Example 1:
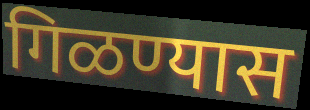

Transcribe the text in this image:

गिळण्यास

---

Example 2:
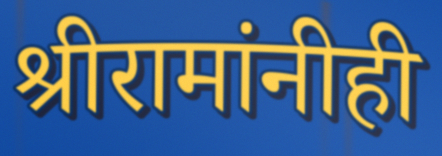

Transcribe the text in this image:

श्रीरामांनीही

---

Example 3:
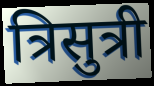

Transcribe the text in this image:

त्रिसुत्री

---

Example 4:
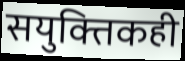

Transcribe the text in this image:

सयुक्तिकही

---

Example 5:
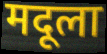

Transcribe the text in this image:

मदूला